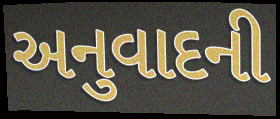
અનુવાદની